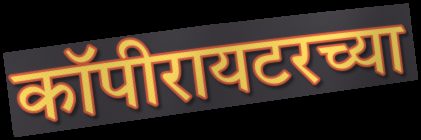
कॉपीरायटरच्या